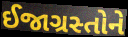
ઈજાગ્રસ્તોને